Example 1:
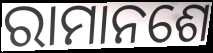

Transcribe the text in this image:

ରାମାନଶେ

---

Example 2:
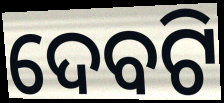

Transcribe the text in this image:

ଦେବଟି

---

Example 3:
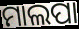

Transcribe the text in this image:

ମାଲପା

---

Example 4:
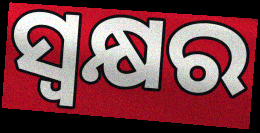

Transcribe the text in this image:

ସ୍ୱକ୍ଷର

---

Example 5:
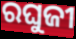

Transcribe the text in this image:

ରଘୁଜୀ